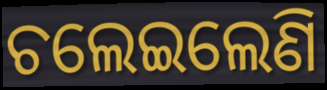
ଚଲେଇଲେଣି